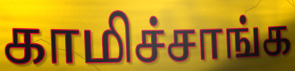
காமிச்சாங்க